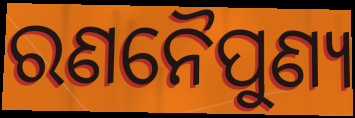
ରଣନୈପୁଣ୍ୟ